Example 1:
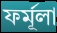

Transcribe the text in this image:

ফৰ্মূলা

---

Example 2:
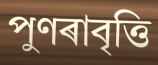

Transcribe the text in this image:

পুণৰাবৃত্তি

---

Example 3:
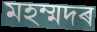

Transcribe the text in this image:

মহম্মদৰ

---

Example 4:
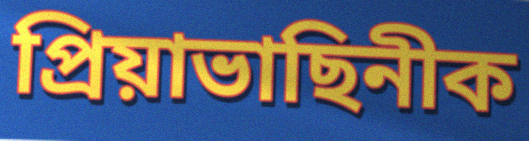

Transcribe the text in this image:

প্ৰিয়াভাছিনীক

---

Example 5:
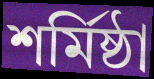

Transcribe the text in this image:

শৰ্মিষ্ঠা